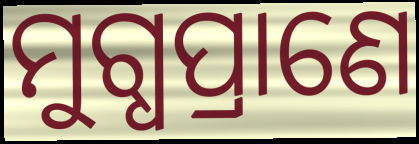
ମୁଗ୍ଧପ୍ରାଣେ